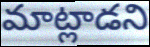
మాట్లాడని